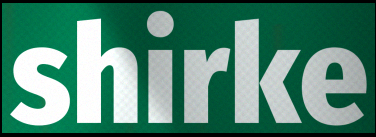
shirke